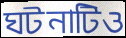
ঘটনাটিও